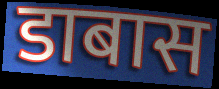
डाबास